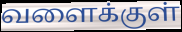
வளைக்குள்